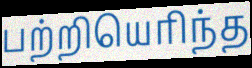
பற்றியெரிந்த